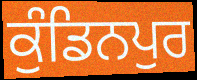
ਕੁੰਡਿਨਪੁਰ